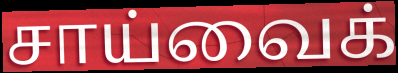
சாய்வைக்